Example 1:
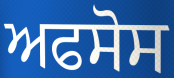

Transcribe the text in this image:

ਅਫਸੋਸ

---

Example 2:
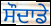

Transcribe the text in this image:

ਸੌਦਾਡੇ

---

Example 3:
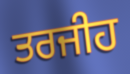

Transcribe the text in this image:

ਤਰਜੀਹ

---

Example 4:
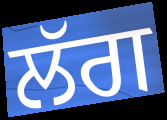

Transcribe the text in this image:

ਲੱਗ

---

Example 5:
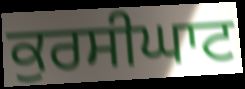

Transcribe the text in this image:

ਕੁਰਸੀਘਾਟ